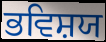
ਭਵਿਸ਼ਯ